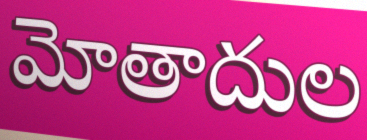
మోతాదుల